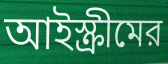
আইস্ক্রীমের